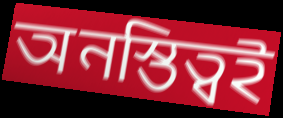
অনস্তিত্বই